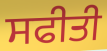
ਸਫੀਤੀ